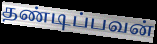
தண்டிப்பவன்